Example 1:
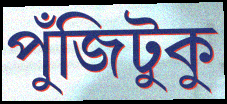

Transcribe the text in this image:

পুঁজিটুকু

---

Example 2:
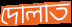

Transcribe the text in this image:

দোলাত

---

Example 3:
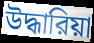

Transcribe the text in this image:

উদ্ধারিয়া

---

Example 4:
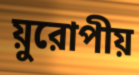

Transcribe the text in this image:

য়ুরোপীয়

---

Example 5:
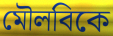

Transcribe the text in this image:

মৌলবিকে